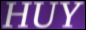
HUY